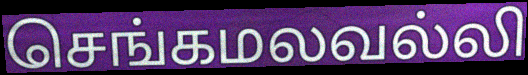
செங்கமலவல்லி